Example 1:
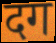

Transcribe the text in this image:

दग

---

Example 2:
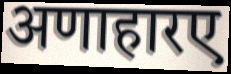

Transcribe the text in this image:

अणाहारए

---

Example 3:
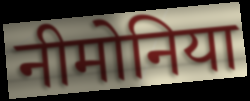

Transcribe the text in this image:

नीमोनिया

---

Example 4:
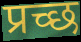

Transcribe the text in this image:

प्रच्छ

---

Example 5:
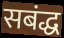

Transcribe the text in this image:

सबंद्ध